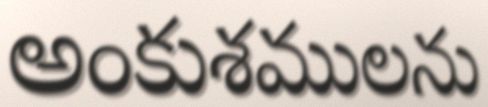
అంకుశములను